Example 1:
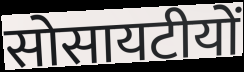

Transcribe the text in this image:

सोसायटीयों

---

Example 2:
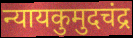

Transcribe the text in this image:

न्यायकुमुदचंद्र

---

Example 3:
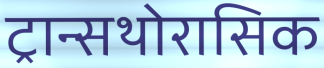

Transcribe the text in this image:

ट्रान्सथोरासिक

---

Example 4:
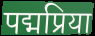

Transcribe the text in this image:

पद्मप्रिया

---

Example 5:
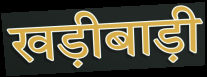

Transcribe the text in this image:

खड़ीबाड़ी